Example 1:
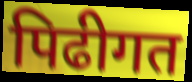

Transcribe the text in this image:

पिढीगत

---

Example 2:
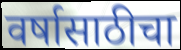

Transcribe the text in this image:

वर्षासाठीचा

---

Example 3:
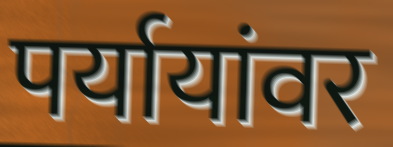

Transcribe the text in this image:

पर्यायांवर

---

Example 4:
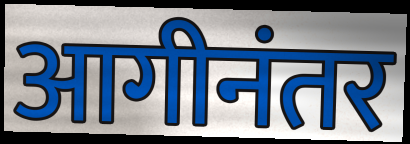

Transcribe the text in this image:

आगीनंतर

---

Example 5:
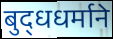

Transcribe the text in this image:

बुद्धधर्माने